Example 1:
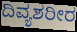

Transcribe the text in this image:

ದಿವ್ಯಶರೀರ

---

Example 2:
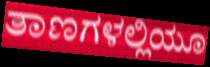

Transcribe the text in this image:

ತಾಣಗಳಲ್ಲಿಯೂ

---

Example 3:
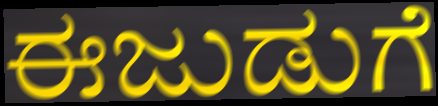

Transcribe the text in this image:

ಈಜುಡುಗೆ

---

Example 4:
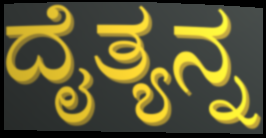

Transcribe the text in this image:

ದೈತ್ಯನ್ನ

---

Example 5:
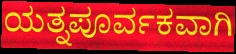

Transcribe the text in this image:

ಯತ್ನಪೂರ್ವಕವಾಗಿ